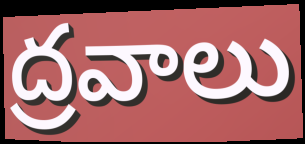
ద్రవాలు